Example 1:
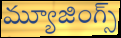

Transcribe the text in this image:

మ్యూజింగ్స్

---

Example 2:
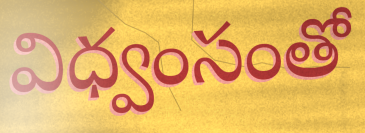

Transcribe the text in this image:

విధ్వంసంతో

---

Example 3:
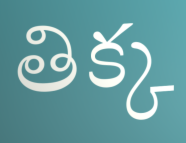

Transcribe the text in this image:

తిక్క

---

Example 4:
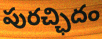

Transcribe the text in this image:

పురచ్ఛిదం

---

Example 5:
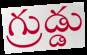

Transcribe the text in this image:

గ్రుడ్డు